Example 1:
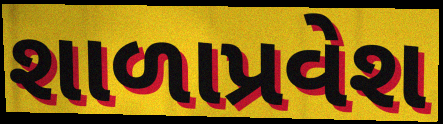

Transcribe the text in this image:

શાળાપ્રવેશ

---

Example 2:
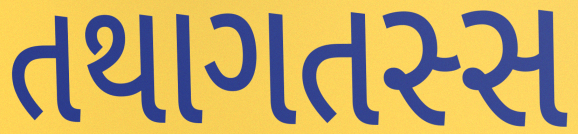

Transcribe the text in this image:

તથાગતસ્સ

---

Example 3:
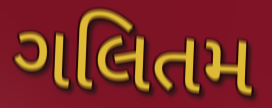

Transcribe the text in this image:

ગલિતમ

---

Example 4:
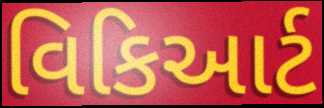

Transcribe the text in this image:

વિકિઆર્ટ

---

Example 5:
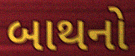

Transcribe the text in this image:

બાથનો